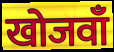
खोजवाँ